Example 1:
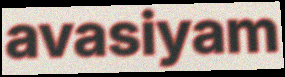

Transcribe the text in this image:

avasiyam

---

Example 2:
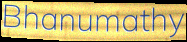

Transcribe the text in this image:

Bhanumathy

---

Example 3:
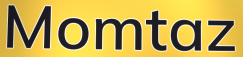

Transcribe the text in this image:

Momtaz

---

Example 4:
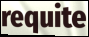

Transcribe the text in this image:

requite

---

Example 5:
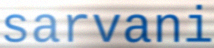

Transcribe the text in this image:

sarvani